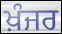
ਖ਼ੰਜਰ